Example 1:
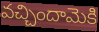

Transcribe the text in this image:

వచ్చిందామెకి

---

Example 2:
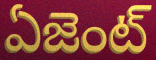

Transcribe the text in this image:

ఏజెంట్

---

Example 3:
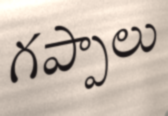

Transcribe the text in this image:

గప్పాలు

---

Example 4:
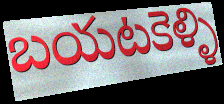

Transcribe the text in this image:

బయటకెళ్ళి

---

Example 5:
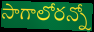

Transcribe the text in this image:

సాగాలోరన్నో